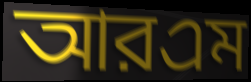
আরএম